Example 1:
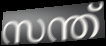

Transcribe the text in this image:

സന്ത്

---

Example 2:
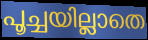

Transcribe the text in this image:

പൂച്ചയില്ലാതെ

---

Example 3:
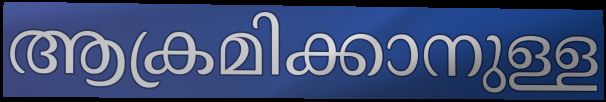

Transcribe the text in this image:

ആക്രമിക്കാനുള്ള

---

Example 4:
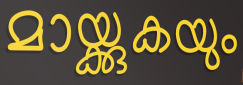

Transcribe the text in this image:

മായ്ക്കുകയും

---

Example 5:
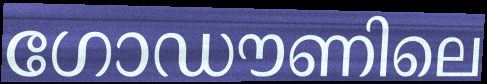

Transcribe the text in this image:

ഗോഡൗണിലെ